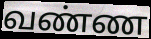
வண்ண